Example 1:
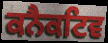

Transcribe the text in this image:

ਕਨੈਕਟਿਵ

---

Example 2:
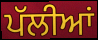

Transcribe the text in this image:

ਪੱਲੀਆਂ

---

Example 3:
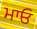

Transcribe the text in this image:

ਮਾਓ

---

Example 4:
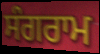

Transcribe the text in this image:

ਸੰਗਰਾਮ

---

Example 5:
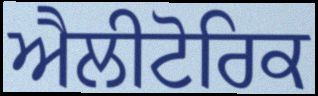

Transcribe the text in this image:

ਐਲੀਟੋਰਿਕ